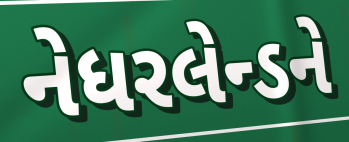
નેધરલેન્ડને